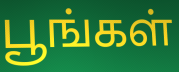
பூங்கள்